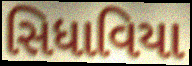
સિધાવિયા